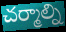
చర్మాల్ని